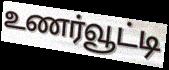
உணர்வூட்டி